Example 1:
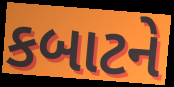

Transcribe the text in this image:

કબાટને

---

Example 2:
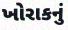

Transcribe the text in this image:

ખોરાકનું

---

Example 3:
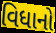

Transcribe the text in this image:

વિધાનો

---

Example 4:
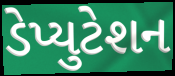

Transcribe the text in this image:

ડેપ્યુટેશન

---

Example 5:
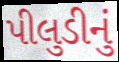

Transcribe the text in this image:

પીલુડીનું